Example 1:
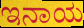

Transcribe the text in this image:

ಇನಾಯ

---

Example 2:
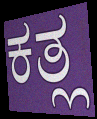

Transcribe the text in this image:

ಕತ್ಲ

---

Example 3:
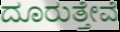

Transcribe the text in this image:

ದೂರುತ್ತೇವೆ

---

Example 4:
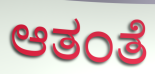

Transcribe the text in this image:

ಆತಂತೆ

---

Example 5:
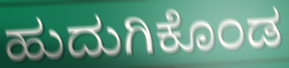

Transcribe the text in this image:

ಹುದುಗಿಕೊಂಡ